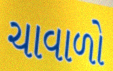
ચાવાળો